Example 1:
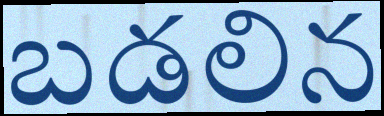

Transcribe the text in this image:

బడలిన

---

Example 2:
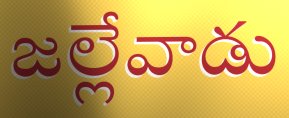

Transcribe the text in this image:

జల్లేవాడు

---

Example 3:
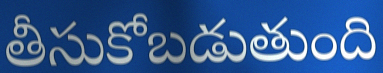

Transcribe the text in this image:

తీసుకోబడుతుంది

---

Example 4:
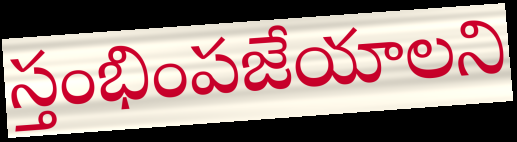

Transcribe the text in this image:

స్తంభింపజేయాలని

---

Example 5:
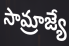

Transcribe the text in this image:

సామ్రాజ్యే